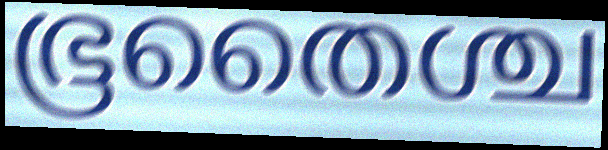
ഭൂതൈശ്ച